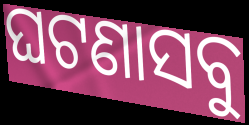
ଘଟଣାସବୁ